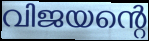
വിജയന്റെ